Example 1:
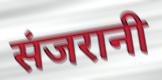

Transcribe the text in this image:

संजरानी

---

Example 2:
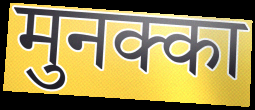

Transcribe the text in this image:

मुनक्का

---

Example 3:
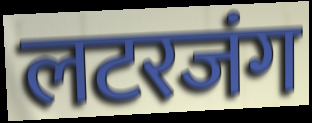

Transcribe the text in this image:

लटरजंग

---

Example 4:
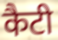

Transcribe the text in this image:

कैटी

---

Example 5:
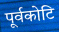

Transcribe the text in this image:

पूर्वकोटि